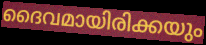
ദൈവമായിരിക്കയും